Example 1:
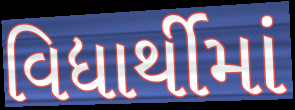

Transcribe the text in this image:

વિદ્યાર્થીમાં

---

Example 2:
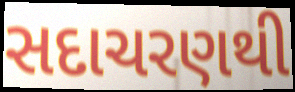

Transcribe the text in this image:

સદાચરણથી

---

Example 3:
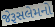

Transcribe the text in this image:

જેરૂસલેમનો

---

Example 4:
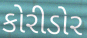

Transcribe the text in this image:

કોરીડોર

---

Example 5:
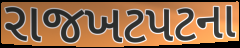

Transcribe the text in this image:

રાજખટપટના